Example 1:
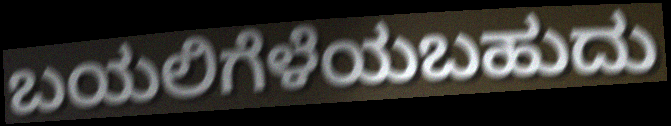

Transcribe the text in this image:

ಬಯಲಿಗೆಳೆಯಬಹುದು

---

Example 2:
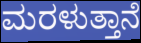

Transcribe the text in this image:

ಮರಳುತ್ತಾನೆ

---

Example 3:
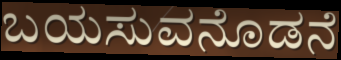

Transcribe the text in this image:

ಬಯಸುವನೊಡನೆ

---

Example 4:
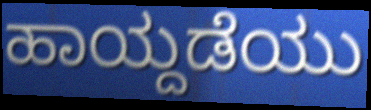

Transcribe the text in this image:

ಹಾಯ್ದಡೆಯು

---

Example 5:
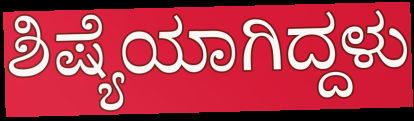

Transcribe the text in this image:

ಶಿಷ್ಯೆಯಾಗಿದ್ದಳು